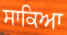
ਸਾਕਿਆ